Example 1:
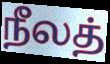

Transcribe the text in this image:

நீலத்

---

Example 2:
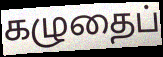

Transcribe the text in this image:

கழுதைப்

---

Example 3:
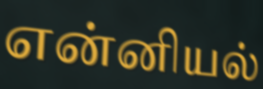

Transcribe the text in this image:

என்னியல்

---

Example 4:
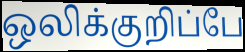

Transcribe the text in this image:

ஒலிக்குறிப்பே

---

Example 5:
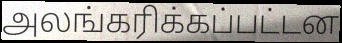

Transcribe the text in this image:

அலங்கரிக்கப்பட்டன